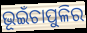
ଭୂଇଁଚାପୁଳିର